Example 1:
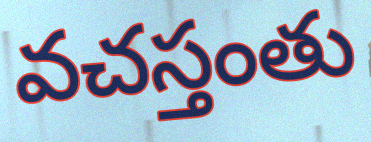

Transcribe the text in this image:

వచస్తంతు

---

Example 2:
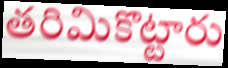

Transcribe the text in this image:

తరిమికొట్టారు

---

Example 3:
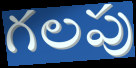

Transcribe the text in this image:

గలపు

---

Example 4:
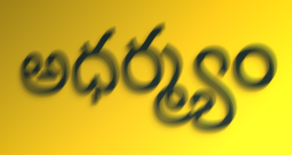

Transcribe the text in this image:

అధర్మ్యం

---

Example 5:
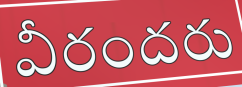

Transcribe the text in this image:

వీరందరు